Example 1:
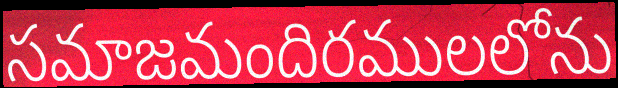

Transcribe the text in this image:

సమాజమందిరములలోను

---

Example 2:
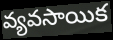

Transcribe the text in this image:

వ్యవసాయిక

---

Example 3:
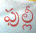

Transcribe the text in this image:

ఫుల్లీ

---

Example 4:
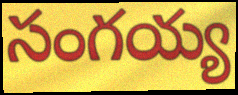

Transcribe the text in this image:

సంగయ్య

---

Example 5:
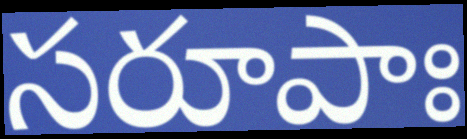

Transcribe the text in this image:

సరూపాః